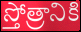
స్తోత్రానికి